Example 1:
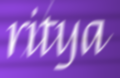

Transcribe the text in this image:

ritya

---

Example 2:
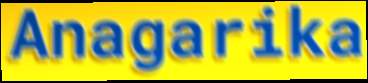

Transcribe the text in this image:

Anagarika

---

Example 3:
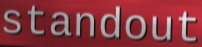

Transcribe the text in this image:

standout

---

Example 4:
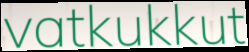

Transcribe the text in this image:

vatkukkut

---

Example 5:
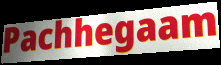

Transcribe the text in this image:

Pachhegaam